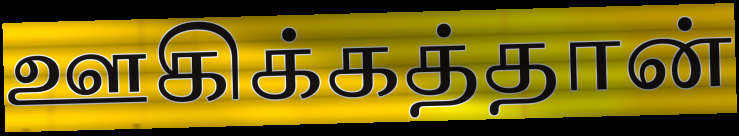
ஊகிக்கத்தான்